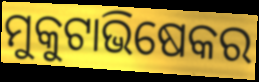
ମୁକୁଟାଭିଷେକର